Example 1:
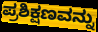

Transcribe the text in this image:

ಪ್ರಶಿಕ್ಷಣವನ್ನು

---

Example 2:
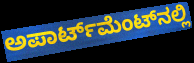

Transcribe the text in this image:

ಅಪಾರ್ಟ್‌ಮೆಂಟ್‌ನಲ್ಲಿ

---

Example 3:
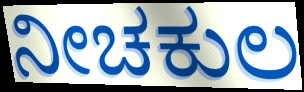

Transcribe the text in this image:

ನೀಚಕುಲ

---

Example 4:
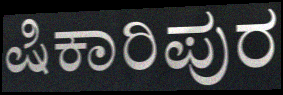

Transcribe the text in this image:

ಷಿಕಾರಿಪುರ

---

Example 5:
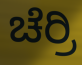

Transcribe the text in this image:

ಚೆರ್ರಿ